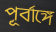
পূর্বাঙ্গে